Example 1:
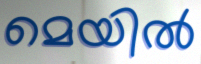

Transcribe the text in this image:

മെയിൽ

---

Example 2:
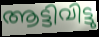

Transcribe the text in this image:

ആട്ടിവിട്ടു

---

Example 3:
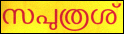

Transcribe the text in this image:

സപുത്രശ്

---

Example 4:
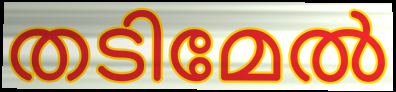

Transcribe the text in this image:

തടിമേൽ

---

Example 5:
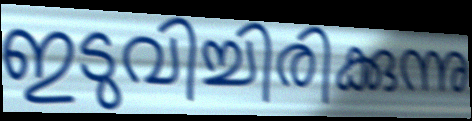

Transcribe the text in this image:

ഇടുവിച്ചിരിക്കുന്നു